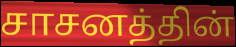
சாசனத்தின்